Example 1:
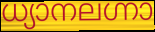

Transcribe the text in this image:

ധ്യാനലഗ്നാ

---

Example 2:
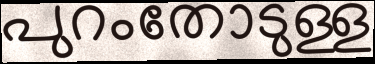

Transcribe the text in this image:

പുറംതോടുള്ള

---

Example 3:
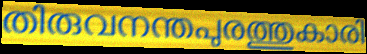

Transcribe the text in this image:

തിരുവനന്തപുരത്തുകാരി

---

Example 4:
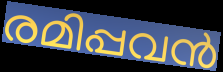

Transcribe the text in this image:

രമിപ്പവൻ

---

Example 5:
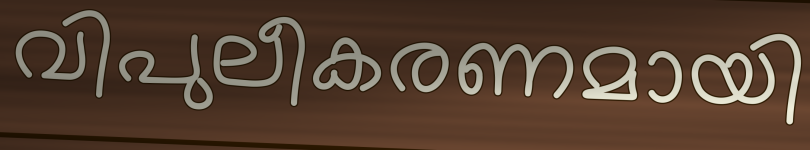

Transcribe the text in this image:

വിപുലീകരണമായി